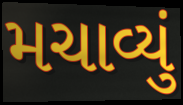
મચાવ્યું